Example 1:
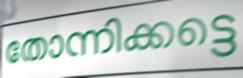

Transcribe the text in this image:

തോന്നിക്കട്ടെ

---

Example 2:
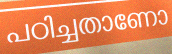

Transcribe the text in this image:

പഠിച്ചതാണോ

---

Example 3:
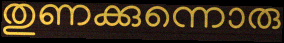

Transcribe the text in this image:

തുണക്കുന്നൊരു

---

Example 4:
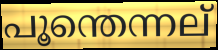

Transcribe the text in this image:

പൂന്തെന്നല്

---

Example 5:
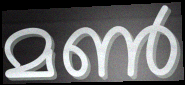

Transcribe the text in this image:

മൺ